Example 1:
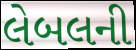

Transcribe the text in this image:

લેબલની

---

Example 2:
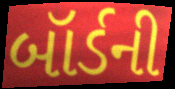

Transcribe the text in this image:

બૉર્ડની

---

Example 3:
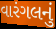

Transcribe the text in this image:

વારંગલનું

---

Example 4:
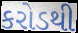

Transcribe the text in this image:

કરોડથી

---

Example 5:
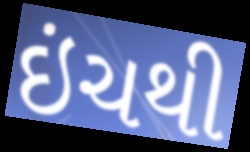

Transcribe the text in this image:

ઇંચથી